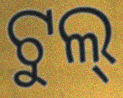
ଟୁଲ୍